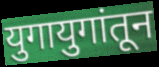
युगायुगांतून